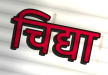
चिद्या